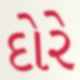
દોરે